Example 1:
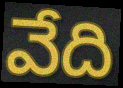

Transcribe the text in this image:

వేది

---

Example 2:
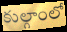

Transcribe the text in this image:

కుల్గాంలో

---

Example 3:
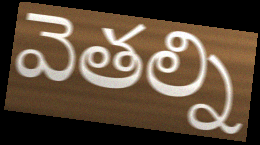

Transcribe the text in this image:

వెతల్ని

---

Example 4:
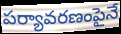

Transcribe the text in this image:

పర్యావరణంపైనే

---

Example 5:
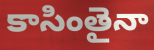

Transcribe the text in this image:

కాసింతైనా